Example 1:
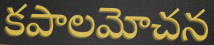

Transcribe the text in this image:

కపాలమోచన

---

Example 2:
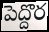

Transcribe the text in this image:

పెద్దొర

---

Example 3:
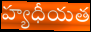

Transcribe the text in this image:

హ్యధీయత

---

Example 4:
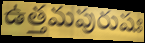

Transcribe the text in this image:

ఉత్తమపురుషః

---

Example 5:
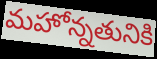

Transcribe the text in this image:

మహోన్నతునికి